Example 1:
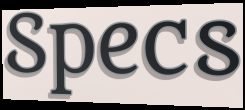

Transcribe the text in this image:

Specs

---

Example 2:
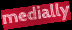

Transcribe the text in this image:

medially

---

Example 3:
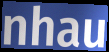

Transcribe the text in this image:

nhau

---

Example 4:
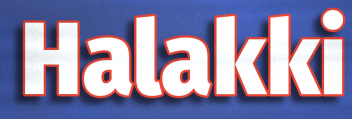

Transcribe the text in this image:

Halakki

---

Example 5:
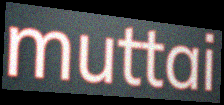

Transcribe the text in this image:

muttai